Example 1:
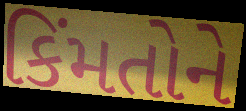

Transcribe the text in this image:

કિંમતોને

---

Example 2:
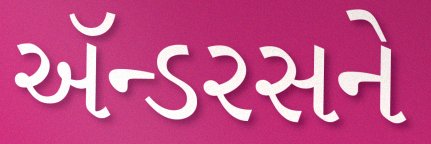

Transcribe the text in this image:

ઍન્ડરસને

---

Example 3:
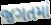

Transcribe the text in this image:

જગતમાં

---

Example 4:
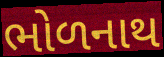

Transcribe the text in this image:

ભોળનાથ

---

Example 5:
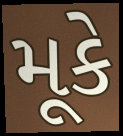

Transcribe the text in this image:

મૂકે